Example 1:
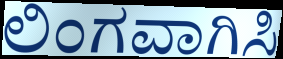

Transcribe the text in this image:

ಲಿಂಗವಾಗಿಸಿ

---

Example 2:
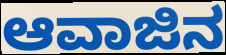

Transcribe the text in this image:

ಆವಾಜಿನ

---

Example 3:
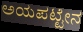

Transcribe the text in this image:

ಅಯಪಟ್ಟೇನ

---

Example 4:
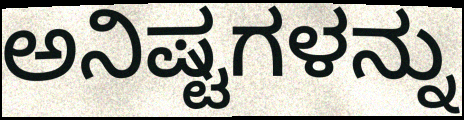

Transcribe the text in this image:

ಅನಿಷ್ಟಗಳನ್ನು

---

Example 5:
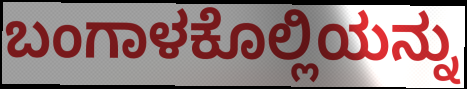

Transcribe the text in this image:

ಬಂಗಾಳಕೊಲ್ಲಿಯನ್ನು